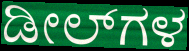
ಡೀಲ್‌ಗಳ